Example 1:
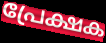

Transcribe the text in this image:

പ്രേക്ഷക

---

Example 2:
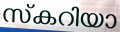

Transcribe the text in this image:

സ്‌കറിയാ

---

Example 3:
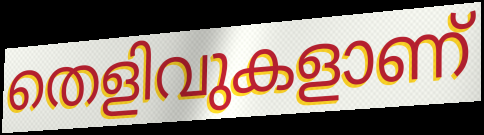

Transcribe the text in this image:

തെളിവുകളാണ്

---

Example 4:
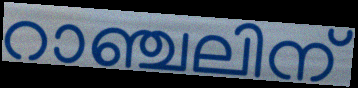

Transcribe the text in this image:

റാഞ്ചലിന്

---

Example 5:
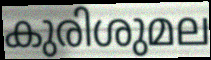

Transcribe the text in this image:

കുരിശുമല